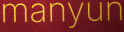
manyun